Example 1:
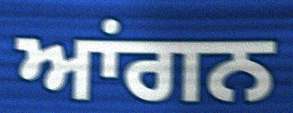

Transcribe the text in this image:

ਆਂਗਨ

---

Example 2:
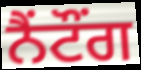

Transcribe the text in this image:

ਨੈਂਟੌਂਗ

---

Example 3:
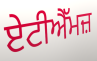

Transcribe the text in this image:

ਏਟੀਐੱਮਜ਼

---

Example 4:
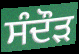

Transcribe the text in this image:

ਸੰਦੌੜ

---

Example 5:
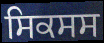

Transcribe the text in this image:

ਸਿਕਸਸ